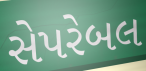
સેપરેબલ